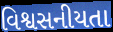
વિશ્વસનીયતા